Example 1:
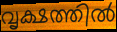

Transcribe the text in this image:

വൃക്ഷത്തിൽ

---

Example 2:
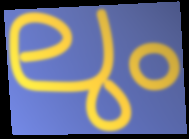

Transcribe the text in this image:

ലും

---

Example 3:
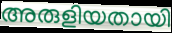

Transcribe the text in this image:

അരുളിയതായി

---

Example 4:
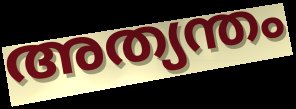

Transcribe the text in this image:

അത്യന്തം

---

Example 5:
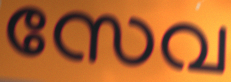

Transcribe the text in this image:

സേവ